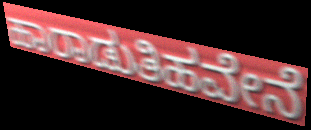
ಹಾರಾಡುತಿಹವೇನೆ